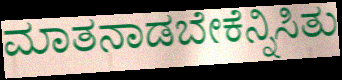
ಮಾತನಾಡಬೇಕೆನ್ನಿಸಿತು